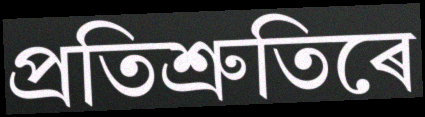
প্ৰতিশ্ৰুতিৰে